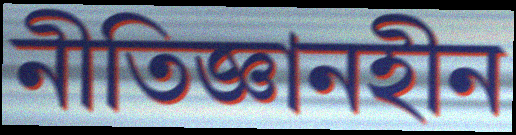
নীতিজ্ঞানহীন